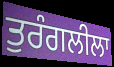
ਤੁਰੰਗਲੀਲਾ